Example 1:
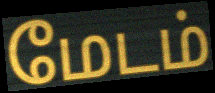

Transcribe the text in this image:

மேடம்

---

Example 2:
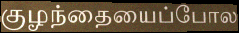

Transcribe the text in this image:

குழந்தையைப்போல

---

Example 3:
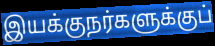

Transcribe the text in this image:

இயக்குநர்களுக்குப்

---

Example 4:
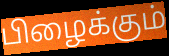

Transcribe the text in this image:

பிழைக்கும்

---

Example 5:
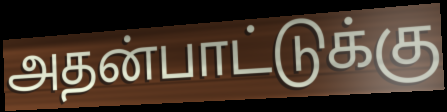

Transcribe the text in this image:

அதன்பாட்டுக்கு